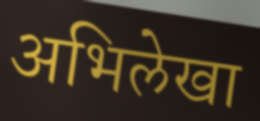
अभिलेखा